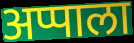
अप्पाला